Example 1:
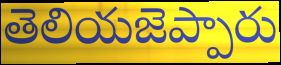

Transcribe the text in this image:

తెలియజెప్పారు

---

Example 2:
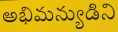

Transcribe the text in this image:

అభిమన్యుడిని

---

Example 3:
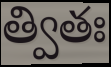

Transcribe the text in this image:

త్వితః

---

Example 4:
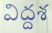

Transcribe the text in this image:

విద్దశ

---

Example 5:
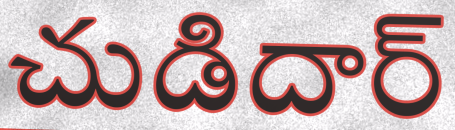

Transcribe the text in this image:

చుడిదార్